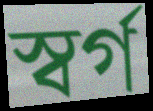
স্বৰ্গ